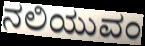
ನಲಿಯುವಂ